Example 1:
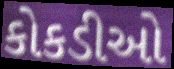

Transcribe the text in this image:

કોકડીઓ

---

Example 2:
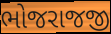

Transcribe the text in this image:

ભોજરાજજી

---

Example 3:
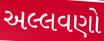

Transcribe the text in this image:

અલ્લવણો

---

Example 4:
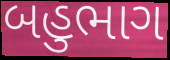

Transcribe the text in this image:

બહુભાગ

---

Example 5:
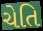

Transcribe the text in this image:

ચેતિ